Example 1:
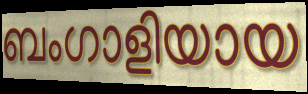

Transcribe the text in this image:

ബംഗാളിയായ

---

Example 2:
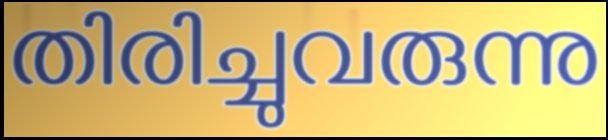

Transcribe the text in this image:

തിരിച്ചുവരുന്നു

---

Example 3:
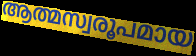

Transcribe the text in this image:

ആത്മസ്വരൂപമായ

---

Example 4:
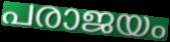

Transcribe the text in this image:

പരാജയം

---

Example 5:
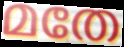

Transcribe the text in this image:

മതേ